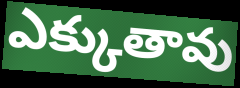
ఎక్కుతావు